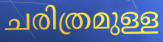
ചരിത്രമുള്ള